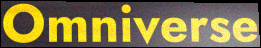
Omniverse